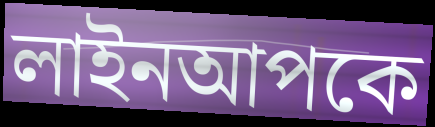
লাইনআপকে